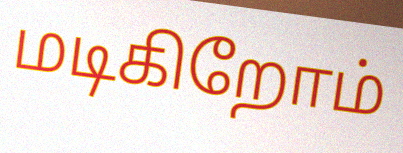
மடிகிறோம்